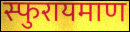
स्फुरायमाण